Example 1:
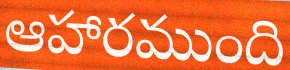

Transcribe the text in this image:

ఆహారముంది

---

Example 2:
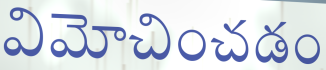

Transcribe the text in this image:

విమోచించడం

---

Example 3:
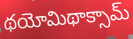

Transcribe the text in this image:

థయోమిథాక్సామ్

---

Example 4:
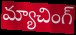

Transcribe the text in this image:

మ్యాచింగ్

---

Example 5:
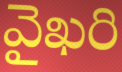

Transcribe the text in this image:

వైఖరి